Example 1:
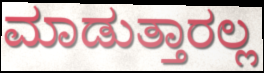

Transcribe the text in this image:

ಮಾಡುತ್ತಾರಲ್ಲ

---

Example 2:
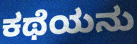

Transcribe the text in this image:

ಕಥೆಯನು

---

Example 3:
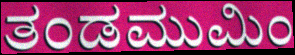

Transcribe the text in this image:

ತಂಡಮುಮಿಂ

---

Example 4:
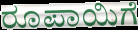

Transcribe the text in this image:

ರೂಪಾಯಿಗೆ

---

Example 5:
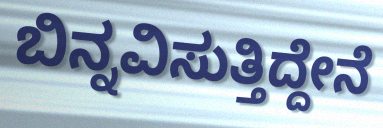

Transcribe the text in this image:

ಬಿನ್ನವಿಸುತ್ತಿದ್ದೇನೆ